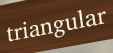
triangular